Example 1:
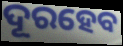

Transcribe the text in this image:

ଦୂରହେବ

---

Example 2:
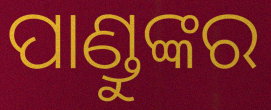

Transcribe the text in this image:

ପାଣ୍ଡୁଙ୍କର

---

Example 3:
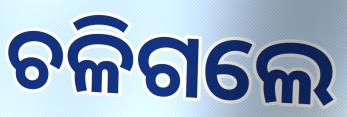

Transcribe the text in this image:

ଚଳିଗଲେ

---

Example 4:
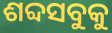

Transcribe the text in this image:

ଶବ୍ଦସବୁକୁ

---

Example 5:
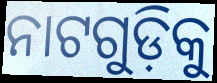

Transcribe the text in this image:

ନାଟଗୁଡ଼ିକୁ